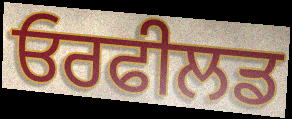
ਓਰਫੀਲਡ